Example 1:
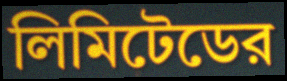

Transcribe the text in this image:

লিমিটেডের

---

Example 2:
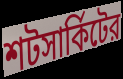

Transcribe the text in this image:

শটসার্কিটের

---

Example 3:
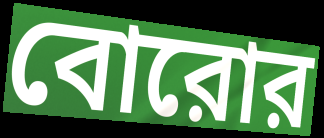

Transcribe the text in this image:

বোরোর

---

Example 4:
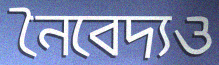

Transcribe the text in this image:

নৈবেদ্যও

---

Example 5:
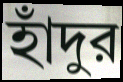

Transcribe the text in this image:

হাঁদুর